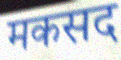
मकसद